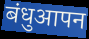
बंधुआपन